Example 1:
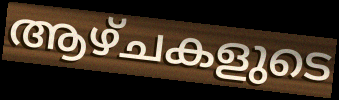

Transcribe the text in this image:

ആഴ്ചകളുടെ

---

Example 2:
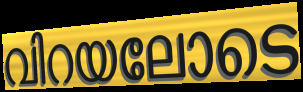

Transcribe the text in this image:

വിറയലോടെ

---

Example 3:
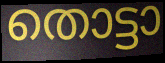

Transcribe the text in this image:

തൊട്ടാ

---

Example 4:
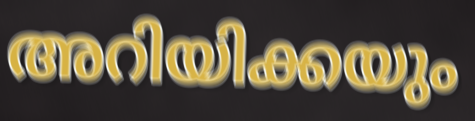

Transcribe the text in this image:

അറിയിക്കയും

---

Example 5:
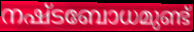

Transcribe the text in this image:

നഷ്ടബോധമുണ്ട്